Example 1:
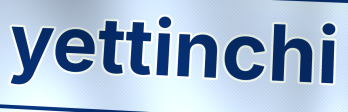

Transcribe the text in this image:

yettinchi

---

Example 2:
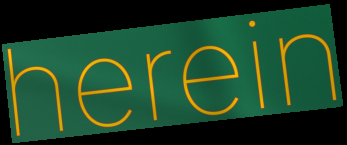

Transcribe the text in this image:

herein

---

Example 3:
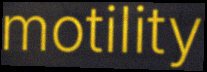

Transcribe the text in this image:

motility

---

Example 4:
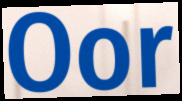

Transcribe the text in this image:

Oor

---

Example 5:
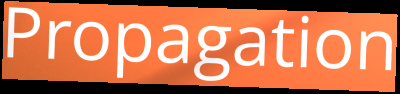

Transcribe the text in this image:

Propagation